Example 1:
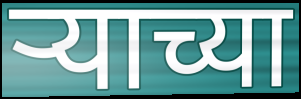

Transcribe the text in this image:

ऱ्याच्या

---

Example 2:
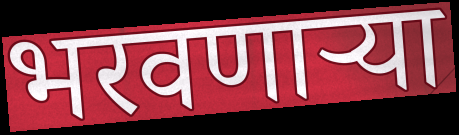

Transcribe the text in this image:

भरवणाऱ्या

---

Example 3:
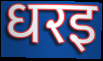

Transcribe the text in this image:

धरइ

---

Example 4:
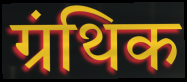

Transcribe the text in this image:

ग्रंथिक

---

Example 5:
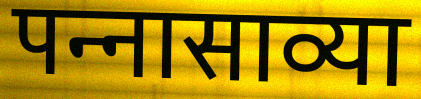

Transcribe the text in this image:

पन्नासाव्या